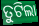
ତୁଟିଲା